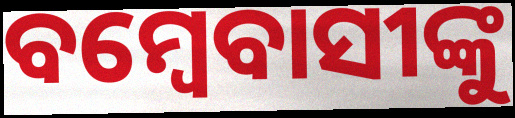
ବମ୍ବେବାସୀଙ୍କୁ